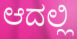
ಆದಲ್ಲಿ